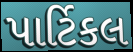
પાર્ટિકલ